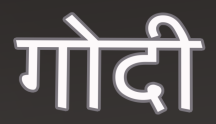
गोदी